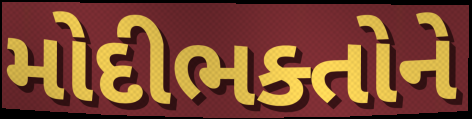
મોદીભક્તોને